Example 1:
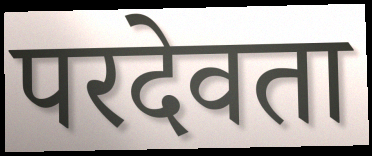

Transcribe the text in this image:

परदेवता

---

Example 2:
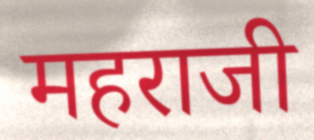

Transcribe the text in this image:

महराजी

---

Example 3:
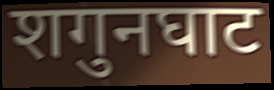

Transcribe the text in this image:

शगुनघाट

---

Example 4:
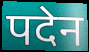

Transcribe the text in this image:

पदेन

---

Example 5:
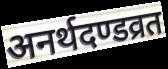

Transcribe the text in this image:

अनर्थदण्डव्रत